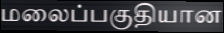
மலைப்பகுதியான